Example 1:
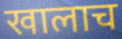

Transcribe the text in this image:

खालाच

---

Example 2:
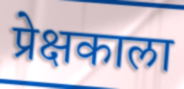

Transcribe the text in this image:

प्रेक्षकाला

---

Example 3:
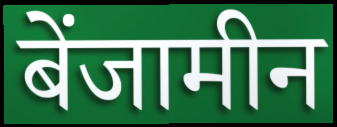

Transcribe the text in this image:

बेंजामीन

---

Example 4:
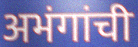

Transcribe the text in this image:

अभंगांची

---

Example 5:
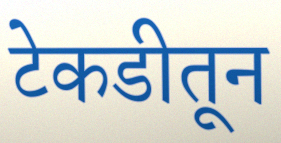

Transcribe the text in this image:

टेकडीतून